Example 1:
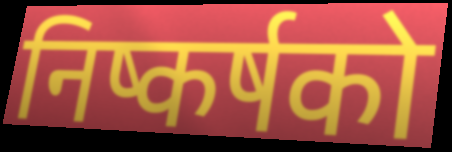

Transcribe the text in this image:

निष्कर्षको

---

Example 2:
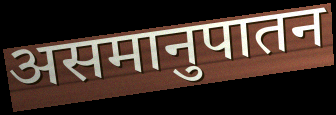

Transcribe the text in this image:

असमानुपातन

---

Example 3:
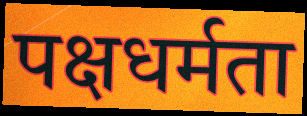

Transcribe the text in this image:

पक्षधर्मता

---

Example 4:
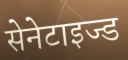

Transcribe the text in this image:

सेनेटाइज्ड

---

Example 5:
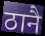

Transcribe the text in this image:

ठानै